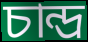
চান্দ্ৰ